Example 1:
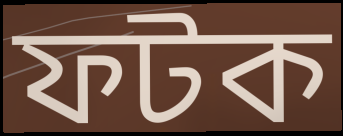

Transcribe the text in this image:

ফটক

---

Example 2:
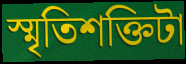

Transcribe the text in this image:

স্মৃতিশক্তিটা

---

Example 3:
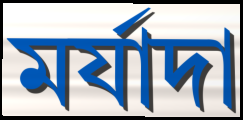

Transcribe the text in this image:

মর্যাদা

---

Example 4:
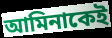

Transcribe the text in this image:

আমিনাকেই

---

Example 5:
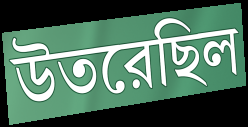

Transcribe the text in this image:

উতরেছিল